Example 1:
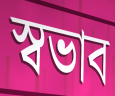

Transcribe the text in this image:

স্বভাব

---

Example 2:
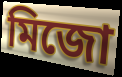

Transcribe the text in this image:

মিজো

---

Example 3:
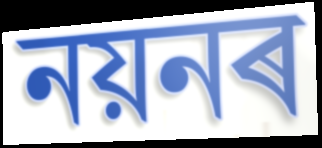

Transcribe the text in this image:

নয়নৰ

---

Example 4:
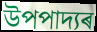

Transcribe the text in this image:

উপপাদ্যৰ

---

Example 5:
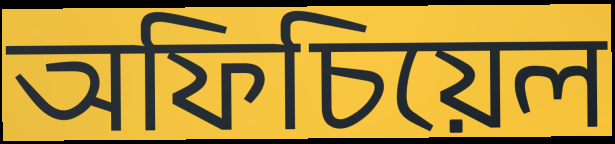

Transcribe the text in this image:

অফিচিয়েল